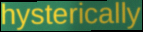
hysterically